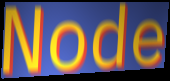
Node